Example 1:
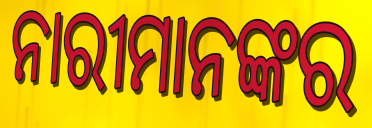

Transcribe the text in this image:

ନାରୀମାନଙ୍କର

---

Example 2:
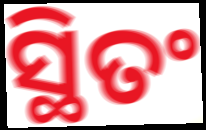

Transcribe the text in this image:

ସ୍ଥିତଂ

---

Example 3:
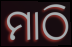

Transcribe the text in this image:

ମାଠି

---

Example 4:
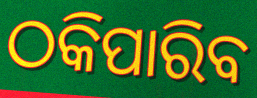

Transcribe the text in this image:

ଠକିପାରିବ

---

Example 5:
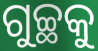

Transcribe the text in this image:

ଗୁଚ୍ଛକୁ